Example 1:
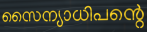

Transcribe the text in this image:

സൈന്യാധിപന്റെ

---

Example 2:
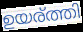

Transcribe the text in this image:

ഉയര്ത്തി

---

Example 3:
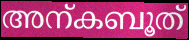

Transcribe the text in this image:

അന്കബൂത്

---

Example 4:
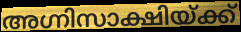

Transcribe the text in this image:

അഗ്നിസാക്ഷിയ്ക്ക്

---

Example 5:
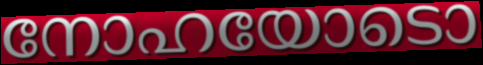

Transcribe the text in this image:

നോഹയോടൊ